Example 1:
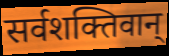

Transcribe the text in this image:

सर्वशक्तिवान्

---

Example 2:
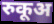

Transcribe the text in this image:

रुकूअ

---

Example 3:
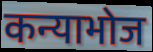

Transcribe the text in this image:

कन्याभोज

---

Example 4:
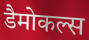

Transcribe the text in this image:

डैमोकल्स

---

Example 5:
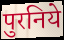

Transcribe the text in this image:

पुरनिये